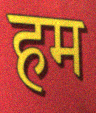
हम